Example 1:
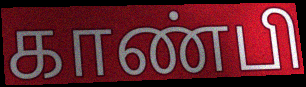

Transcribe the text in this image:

காண்பி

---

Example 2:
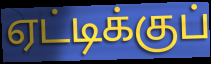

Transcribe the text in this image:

ஏட்டிக்குப்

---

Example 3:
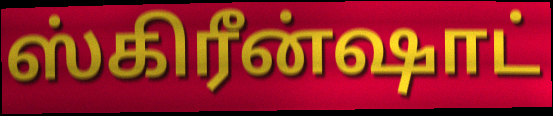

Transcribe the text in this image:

ஸ்கிரீன்ஷாட்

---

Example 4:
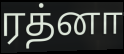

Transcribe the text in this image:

ரத்னா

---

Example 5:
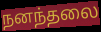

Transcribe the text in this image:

நனந்தலை